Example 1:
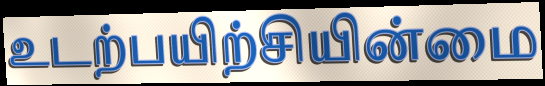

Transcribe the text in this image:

உடற்பயிற்சியின்மை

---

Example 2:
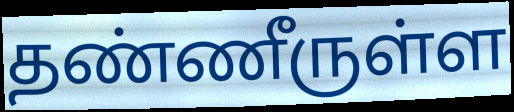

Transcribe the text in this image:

தண்ணீருள்ள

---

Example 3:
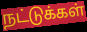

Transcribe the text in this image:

நட்டுக்கள்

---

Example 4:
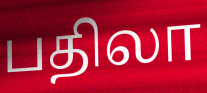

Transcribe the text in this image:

பதிலா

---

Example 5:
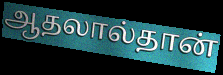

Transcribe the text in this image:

ஆதலால்தான்